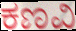
ಕಣವಿ